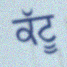
ਕੱਟੂ